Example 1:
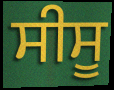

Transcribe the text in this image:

ਸੀਸੂ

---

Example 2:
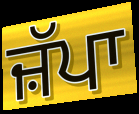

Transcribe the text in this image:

ਜ਼ੱਪਾ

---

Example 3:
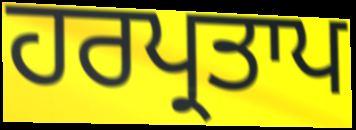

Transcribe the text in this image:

ਹਰਪ੍ਰਤਾਪ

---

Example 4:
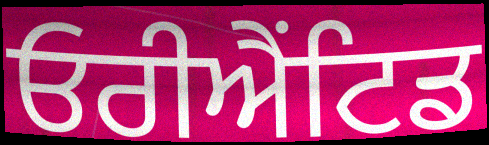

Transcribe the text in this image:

ਓਰੀਐਂਟਿਡ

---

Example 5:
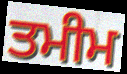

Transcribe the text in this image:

ਤਮੀਮ